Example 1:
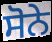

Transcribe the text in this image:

ਸੋਨੇ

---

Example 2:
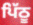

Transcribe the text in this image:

ਪਿੱਠੂ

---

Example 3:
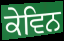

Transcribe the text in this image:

ਕੇਵਿਨ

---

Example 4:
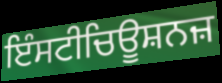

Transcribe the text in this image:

ਇੰਸਟੀਚਿਊਸ਼ਨਜ਼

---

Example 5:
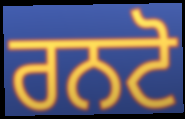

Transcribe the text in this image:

ਰਨਟੋ